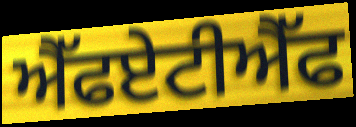
ਐੱਫਏਟੀਐੱਫ